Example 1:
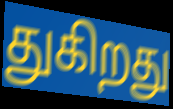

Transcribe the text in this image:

துகிறது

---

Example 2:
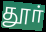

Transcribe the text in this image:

தூர்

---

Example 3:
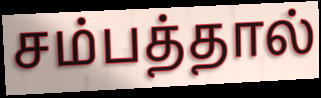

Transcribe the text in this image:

சம்பத்தால்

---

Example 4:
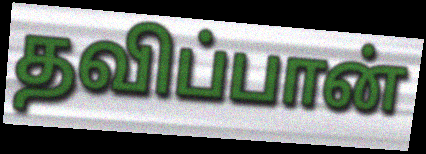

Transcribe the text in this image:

தவிப்பான்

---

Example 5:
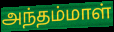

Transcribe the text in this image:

அந்தம்மாள்